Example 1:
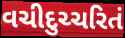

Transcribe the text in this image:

વચીદુચ્ચરિતં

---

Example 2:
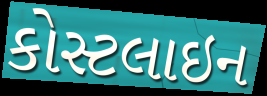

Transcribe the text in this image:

કોસ્ટલાઇન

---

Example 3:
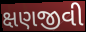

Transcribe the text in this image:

ક્ષણજીવી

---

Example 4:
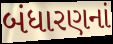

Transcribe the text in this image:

બંધારણનાં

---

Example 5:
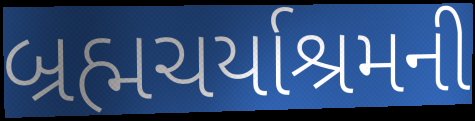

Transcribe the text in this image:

બ્રહ્મચર્યાશ્રમની